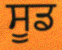
ਸੂਡ